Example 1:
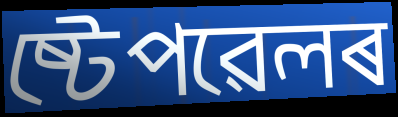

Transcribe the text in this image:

ষ্টেপৱেলৰ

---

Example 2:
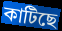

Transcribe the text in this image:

কাটিছে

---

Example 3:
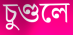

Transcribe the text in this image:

চুণ্ডলে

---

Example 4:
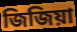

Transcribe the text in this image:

জিজিয়া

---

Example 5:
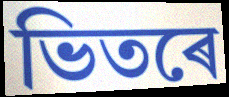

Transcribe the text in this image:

ভিতৰে